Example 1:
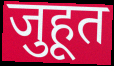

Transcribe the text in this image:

जुहूत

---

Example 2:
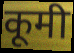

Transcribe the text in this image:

कूमी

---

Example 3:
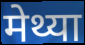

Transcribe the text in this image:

मेथ्या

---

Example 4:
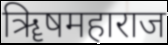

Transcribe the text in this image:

ॠिषमहाराज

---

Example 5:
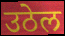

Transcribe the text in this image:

उठेल